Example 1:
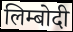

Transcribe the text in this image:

लिम्बोदी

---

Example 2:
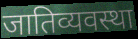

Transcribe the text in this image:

जातिव्यवस्था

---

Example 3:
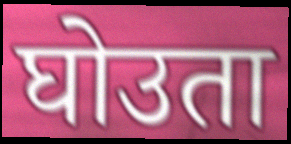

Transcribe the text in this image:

घोउता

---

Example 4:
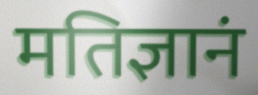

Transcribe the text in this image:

मतिज्ञानं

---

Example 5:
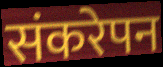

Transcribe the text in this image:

संकरेपन